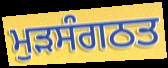
ਮੁੜਸੰਗਠਤ